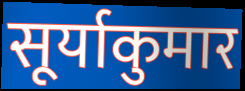
सूर्याकुमार